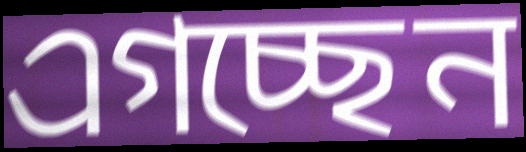
এগচ্ছেন